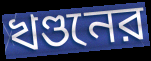
খণ্ডনের